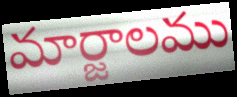
మార్జాలము